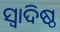
ସ୍ୱାଦିଷ୍ଠ